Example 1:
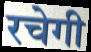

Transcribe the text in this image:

रचेगी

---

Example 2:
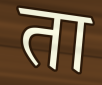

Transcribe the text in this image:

ता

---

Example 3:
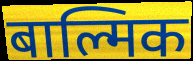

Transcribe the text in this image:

बाल्मिक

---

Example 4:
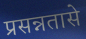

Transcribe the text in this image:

प्रसन्नतासे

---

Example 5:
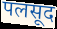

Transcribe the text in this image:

पलसूद